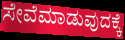
ಸೇವೆಮಾಡುವುದಕ್ಕೆ